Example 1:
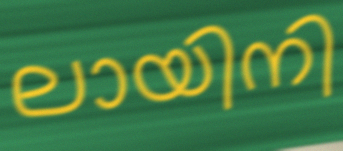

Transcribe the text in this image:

ലായിനി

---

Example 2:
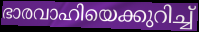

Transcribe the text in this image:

ഭാരവാഹിയെക്കുറിച്ച്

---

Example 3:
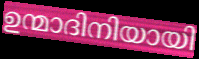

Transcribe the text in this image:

ഉന്മാദിനിയായി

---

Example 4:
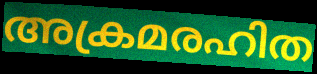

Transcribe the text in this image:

അക്രമരഹിത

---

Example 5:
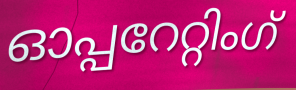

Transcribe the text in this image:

ഓപ്പറേറ്റിംഗ്